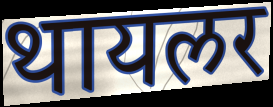
थायलर